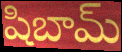
షిబామ్